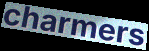
charmers